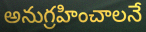
అనుగ్రహించాలనే